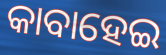
କାବାହେଇ